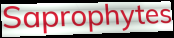
Saprophytes